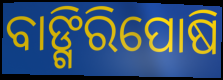
ବାଙ୍ଗିରିପୋଷି